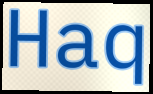
Haq